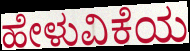
ಹೇಳುವಿಕೆಯ